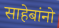
साहेबांनो